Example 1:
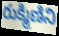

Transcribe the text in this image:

రుక్మిణిని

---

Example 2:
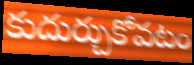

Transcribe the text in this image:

కుదుర్చుకోవటం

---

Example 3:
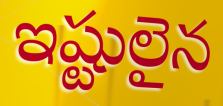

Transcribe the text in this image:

ఇష్టులైన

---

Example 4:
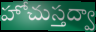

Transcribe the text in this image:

హోచుస్తద్వా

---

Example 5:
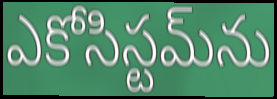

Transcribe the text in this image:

ఎకోసిస్టమ్‌ను